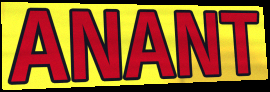
ANANT